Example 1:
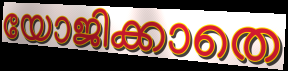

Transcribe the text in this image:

യോജിക്കാതെ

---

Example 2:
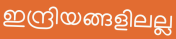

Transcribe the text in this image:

ഇന്ദ്രിയങ്ങളിലല്ല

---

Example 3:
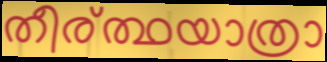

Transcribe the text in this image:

തീര്ത്ഥയാത്രാ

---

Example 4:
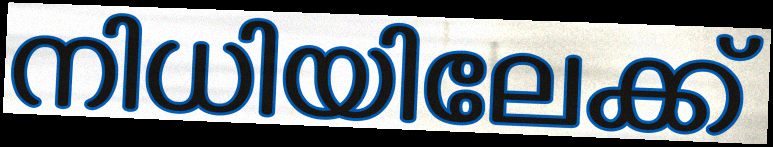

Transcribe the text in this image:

നിധിയിലേക്ക്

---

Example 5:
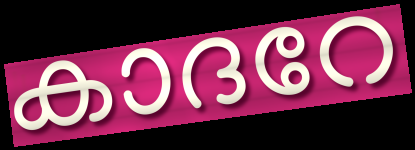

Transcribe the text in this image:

കാദറേ